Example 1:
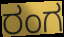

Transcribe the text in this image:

ರಂಗ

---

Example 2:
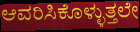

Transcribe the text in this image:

ಆವರಿಸಿಕೊಳ್ಳುತ್ತಲೇ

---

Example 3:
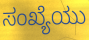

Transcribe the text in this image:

ಸಂಖ್ಯೆಯು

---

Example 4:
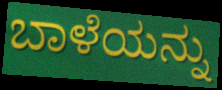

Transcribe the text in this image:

ಬಾಳೆಯನ್ನು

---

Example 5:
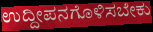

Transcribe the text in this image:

ಉದ್ದೀಪನಗೊಳಿಸಬೇಕು